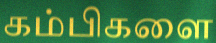
கம்பிகளை